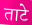
ताटे